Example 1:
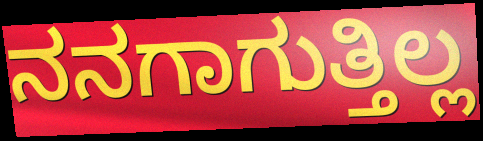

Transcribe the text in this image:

ನನಗಾಗುತ್ತಿಲ್ಲ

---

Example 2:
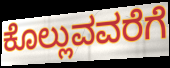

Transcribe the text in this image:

ಕೊಲ್ಲುವವರೆಗೆ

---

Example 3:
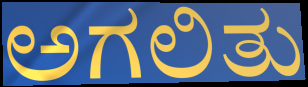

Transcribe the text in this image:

ಅಗಲಿತು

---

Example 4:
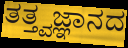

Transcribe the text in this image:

ತತ್ತ್ವಜ್ಞಾನದ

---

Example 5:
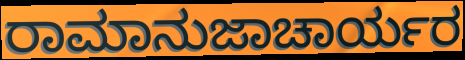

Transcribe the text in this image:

ರಾಮಾನುಜಾಚಾರ್ಯರ